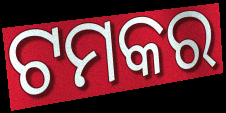
ଟମକର